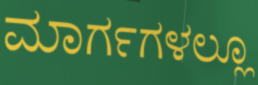
ಮಾರ್ಗಗಳಲ್ಲೂ